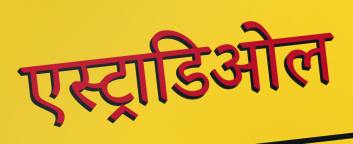
एस्ट्राडिओल